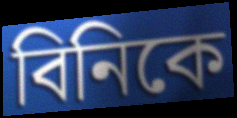
বিনিকে